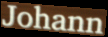
Johann